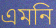
এমনি